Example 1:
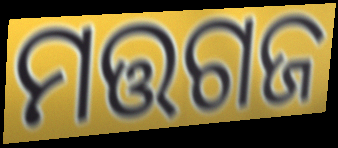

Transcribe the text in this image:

ମତ୍ତଗଜ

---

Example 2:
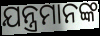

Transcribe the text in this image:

ଯନ୍ତ୍ରମାନଙ୍କ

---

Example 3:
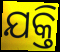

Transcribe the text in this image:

ଯକ୍ତି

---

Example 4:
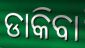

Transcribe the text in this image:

ଡାକିବା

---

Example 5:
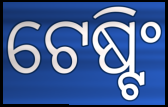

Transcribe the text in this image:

ଟେଷ୍ଟିଂ